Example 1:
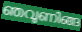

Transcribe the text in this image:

ഞവുണിങ്ങ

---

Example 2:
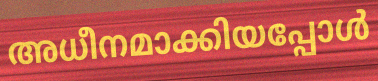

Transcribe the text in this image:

അധീനമാക്കിയപ്പോൾ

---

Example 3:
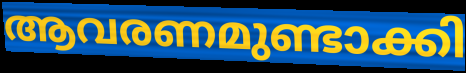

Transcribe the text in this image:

ആവരണമുണ്ടാക്കി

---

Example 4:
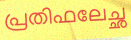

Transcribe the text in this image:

പ്രതിഫലേച്ഛ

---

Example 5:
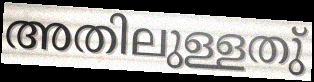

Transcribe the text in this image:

അതിലുള്ളതു്